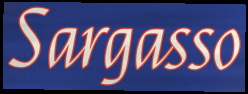
Sargasso